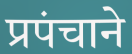
प्रपंचाने